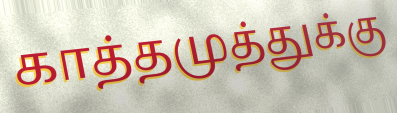
காத்தமுத்துக்கு